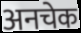
अनचेक